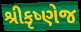
શ્રીકૃષ્ણેજ